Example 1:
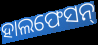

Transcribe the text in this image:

ହାଲଫେସନ୍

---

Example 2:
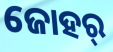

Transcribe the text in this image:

ଜୋହର୍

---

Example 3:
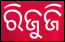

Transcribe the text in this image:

ରିଜୁଜି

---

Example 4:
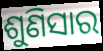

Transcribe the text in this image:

ଶୁଣିସାର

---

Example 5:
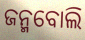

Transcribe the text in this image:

ଜନ୍ମବୋଲି